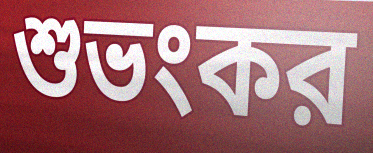
শুভংকর